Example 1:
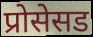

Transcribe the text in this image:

प्रोसेसड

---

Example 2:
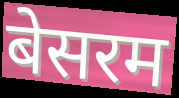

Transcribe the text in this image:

बेसरम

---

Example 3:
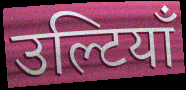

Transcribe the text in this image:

उल्टियाँ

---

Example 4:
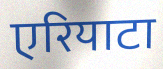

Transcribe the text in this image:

एरियाटा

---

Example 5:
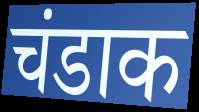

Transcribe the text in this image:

चंडाक